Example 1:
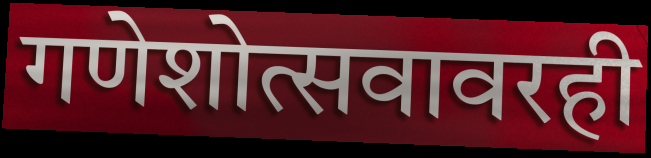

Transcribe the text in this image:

गणेशोत्सवावरही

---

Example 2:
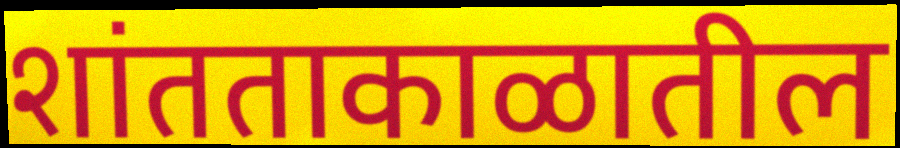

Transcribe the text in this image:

शांतताकाळातील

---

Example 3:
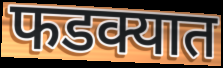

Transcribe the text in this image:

फडक्यात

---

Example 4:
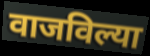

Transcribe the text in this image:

वाजविल्या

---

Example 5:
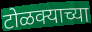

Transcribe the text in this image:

टोळक्याच्या